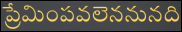
ప్రేమింపవలెననునది